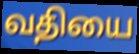
வதியை